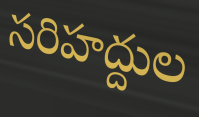
సరిహద్దుల